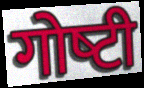
गोष्‍टी